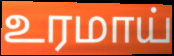
உரமாய்